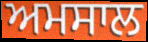
ਅਮਸਾਲ